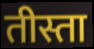
तीस्ता